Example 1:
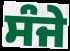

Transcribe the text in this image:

ਸੰਜੇ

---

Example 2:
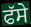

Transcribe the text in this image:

ਫੱਸੇ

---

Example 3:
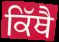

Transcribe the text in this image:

ਕਿੱਥੈ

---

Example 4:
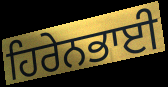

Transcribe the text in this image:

ਹਿਰੇਨਭਾਈ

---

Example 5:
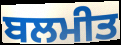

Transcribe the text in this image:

ਬਲਮੀਤ